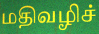
மதிவழிச்